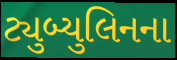
ટ્યુબ્યુલિનના